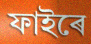
ফাইৰে